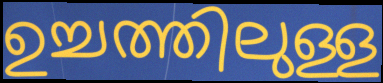
ഉച്ചത്തിലുള്ള